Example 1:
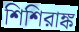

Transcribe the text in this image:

শিশিরাঙ্ক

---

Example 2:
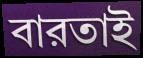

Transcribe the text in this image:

বারতাই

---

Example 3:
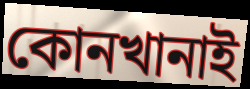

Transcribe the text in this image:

কোনখানাই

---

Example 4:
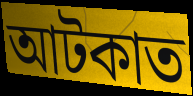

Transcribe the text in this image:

আটকাত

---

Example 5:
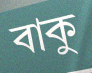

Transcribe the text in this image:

বাকু